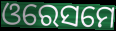
ଓରେସମେ